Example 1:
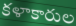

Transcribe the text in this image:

కళాకారుల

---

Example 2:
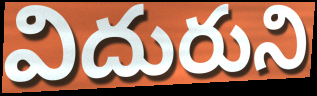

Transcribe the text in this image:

విదురుని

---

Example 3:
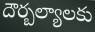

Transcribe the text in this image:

దౌర్బల్యాలకు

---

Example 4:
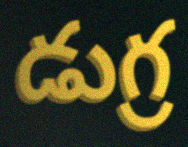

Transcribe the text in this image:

డుగ్ర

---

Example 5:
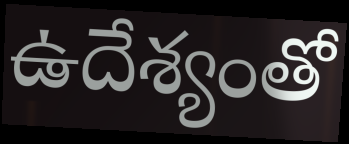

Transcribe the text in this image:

ఉదేశ్యంతో